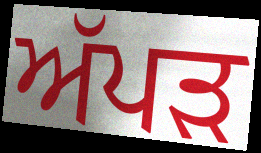
ਅੱਪੜ